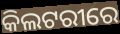
କିଲଟରୀରେ